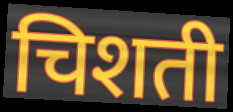
चिशती